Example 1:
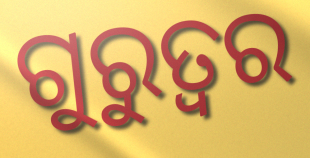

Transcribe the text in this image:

ଗୁରୁତ୍ବର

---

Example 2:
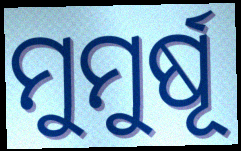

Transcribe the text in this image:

ମୁମୁର୍ଷୂ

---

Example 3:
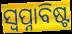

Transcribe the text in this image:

ସ୍ୱପ୍ନାବିଷ୍ଟ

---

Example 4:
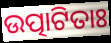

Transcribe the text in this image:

ଉତ୍ପାଟିତାଃ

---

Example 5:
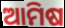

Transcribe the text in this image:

ଆମିଷ